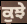
ਕੁਝੇ